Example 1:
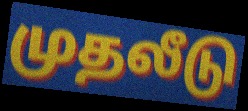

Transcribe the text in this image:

முதலீடு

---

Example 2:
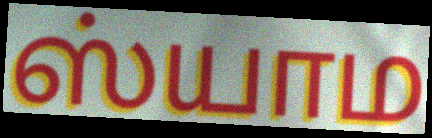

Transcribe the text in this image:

ஸ்யாம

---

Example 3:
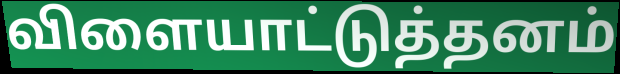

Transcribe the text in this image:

விளையாட்டுத்தனம்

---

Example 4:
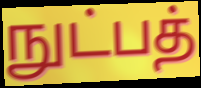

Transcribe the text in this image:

நுட்பத்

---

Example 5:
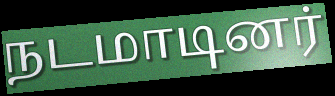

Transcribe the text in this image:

நடமாடினர்